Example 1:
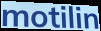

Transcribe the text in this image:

motilin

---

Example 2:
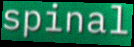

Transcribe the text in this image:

spinal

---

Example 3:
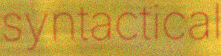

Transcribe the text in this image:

syntactical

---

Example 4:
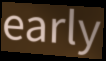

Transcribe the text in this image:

early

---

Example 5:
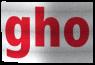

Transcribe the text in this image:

gho